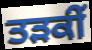
ਤੜਕੀਂ